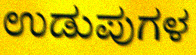
ಉಡುಪುಗಳ